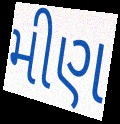
મીણ